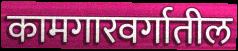
कामगारवर्गातील